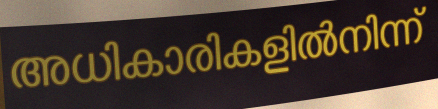
അധികാരികളിൽനിന്ന്